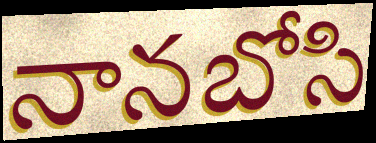
నానబోసి